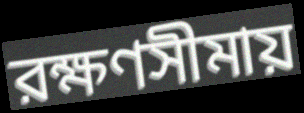
রক্ষণসীমায়